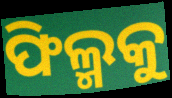
ଫିଲ୍ମକୁ